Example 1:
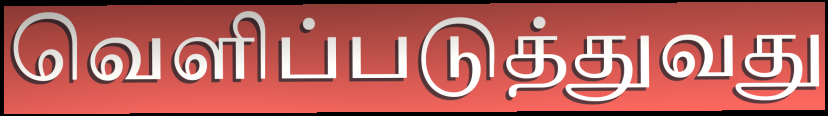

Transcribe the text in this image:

வெளிப்படுத்துவது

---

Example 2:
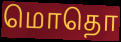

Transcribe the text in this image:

மொதொ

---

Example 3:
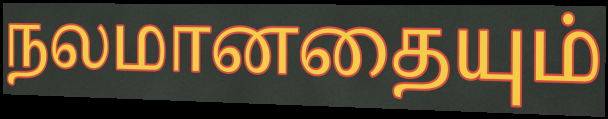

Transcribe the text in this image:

நலமானதையும்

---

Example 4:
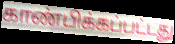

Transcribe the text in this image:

காண்பிக்கப்பட்டது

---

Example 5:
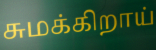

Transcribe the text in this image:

சுமக்கிறாய்